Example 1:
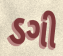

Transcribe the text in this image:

ડગી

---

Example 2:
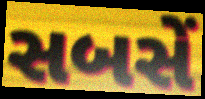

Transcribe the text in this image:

સબસેં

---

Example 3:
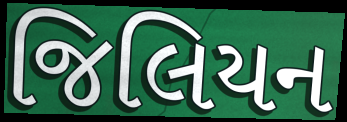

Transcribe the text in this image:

જિલિયન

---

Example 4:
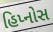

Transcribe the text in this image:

હિપ્નોસ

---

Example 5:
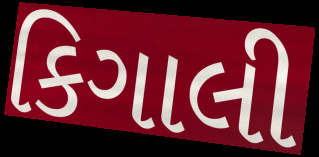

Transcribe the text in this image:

કિગાલી